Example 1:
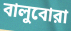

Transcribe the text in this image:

বালুবোরা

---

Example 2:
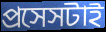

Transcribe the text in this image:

প্রসেসটাই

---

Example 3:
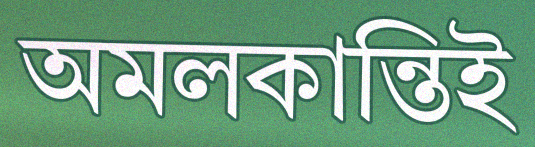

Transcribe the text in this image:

অমলকান্তিই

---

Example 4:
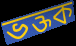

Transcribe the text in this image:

ভক্তক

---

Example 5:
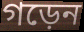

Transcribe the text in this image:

গড়েন